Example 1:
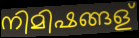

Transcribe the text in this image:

നിമിഷങ്ങള്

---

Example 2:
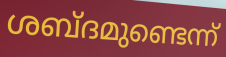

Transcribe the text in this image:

ശബ്ദമുണ്ടെന്ന്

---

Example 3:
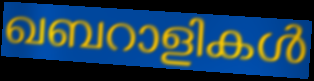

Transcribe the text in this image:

ഖബറാളികൾ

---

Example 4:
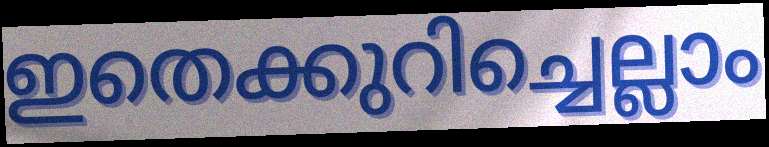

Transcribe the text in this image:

ഇതെക്കുറിച്ചെല്ലാം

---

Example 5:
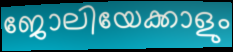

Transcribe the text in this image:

ജോലിയേക്കാളും